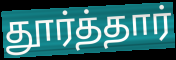
தூர்த்தார்